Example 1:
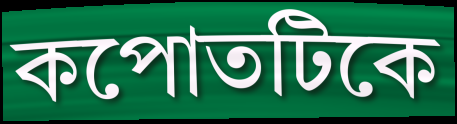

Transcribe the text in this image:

কপোতটিকে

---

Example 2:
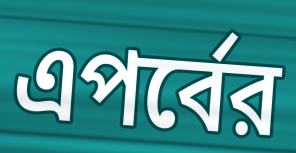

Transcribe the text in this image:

এপর্বের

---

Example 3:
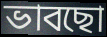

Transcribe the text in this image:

ভাবছো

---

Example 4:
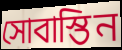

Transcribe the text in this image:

সোবাস্তিন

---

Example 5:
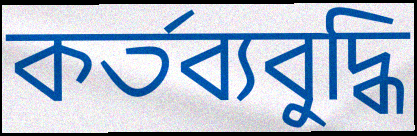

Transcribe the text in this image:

কর্তব্যবুদ্ধি